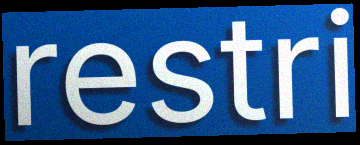
restri